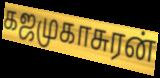
கஜமுகாசுரன்